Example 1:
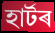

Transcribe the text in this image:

হাৰ্টৰ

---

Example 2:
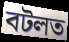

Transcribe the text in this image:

বটলত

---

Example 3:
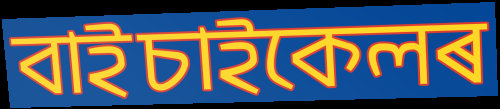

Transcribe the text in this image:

বাইচাইকেলৰ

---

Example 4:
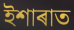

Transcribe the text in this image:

ইশাৰাত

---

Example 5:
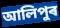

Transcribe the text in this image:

আলিপুৰ